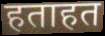
हताहत